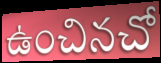
ఉంచినచో